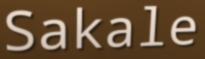
Sakale